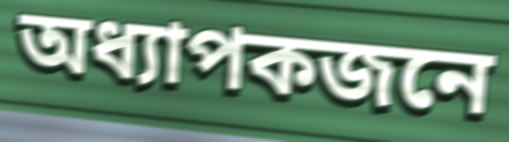
অধ্যাপকজনে